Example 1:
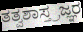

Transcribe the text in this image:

ತತ್ವಶಾಸ್ತ್ರಜ್ಞರ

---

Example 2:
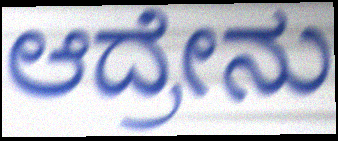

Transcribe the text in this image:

ಆದ್ರೇನು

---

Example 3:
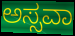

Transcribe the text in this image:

ಅಸ್ಸವಾ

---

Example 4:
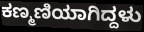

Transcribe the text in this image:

ಕಣ್ಮಣಿಯಾಗಿದ್ದಳು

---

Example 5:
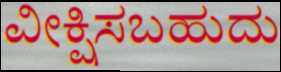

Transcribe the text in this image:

ವೀಕ್ಷಿಸಬಹುದು